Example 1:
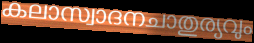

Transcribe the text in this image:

കലാസ്വാദനചാതുര്യവും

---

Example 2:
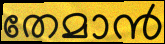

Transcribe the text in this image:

തേമാൻ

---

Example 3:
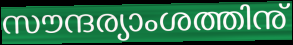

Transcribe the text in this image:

സൗന്ദര്യാംശത്തിനു്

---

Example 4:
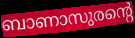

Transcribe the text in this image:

ബാണാസുരന്റെ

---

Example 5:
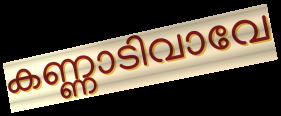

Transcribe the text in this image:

കണ്ണാടിവാവേ